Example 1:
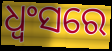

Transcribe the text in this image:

ଧ୍ଵଂସରେ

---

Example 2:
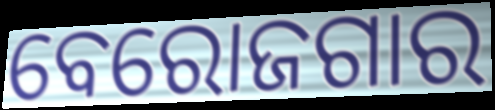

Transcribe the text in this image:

ବେରୋଜଗାର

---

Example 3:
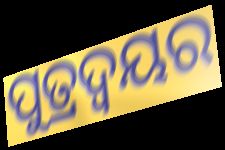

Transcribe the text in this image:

ପୁତ୍ରଦ୍ୱୟର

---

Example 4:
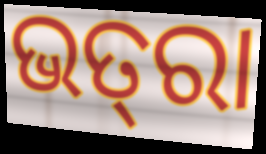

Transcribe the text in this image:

ଭତ୍‌ରା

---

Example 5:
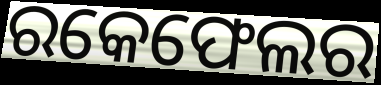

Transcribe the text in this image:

ରକେଫେଲର